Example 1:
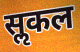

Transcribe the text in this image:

सॢकल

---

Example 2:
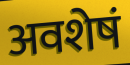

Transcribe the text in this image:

अवशेषं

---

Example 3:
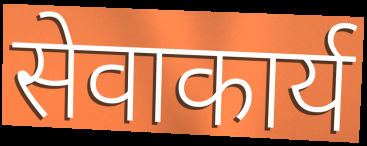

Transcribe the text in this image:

सेवाकार्य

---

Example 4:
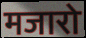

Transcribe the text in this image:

मजारो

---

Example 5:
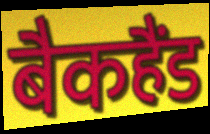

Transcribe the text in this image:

बैकहैंड